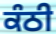
ਕੰਠੀ